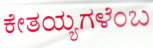
ಕೇತಯ್ಯಗಳೆಂಬ